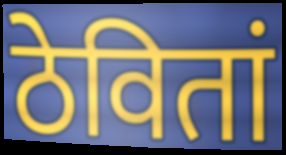
ठेवितां